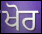
ਖੋਰ